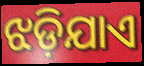
ଝଡ଼ିଯାଏ